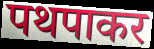
पथपाकर